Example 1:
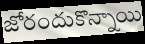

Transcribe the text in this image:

జోరందుకొన్నాయి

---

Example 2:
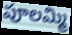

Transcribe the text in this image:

పూలమ్మి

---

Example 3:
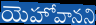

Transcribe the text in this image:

యెహోవానని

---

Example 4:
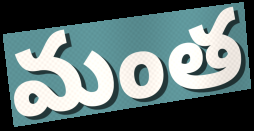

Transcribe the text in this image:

మంత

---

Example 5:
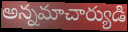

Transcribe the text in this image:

అన్నమాచార్యుడి